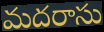
మదరాసు